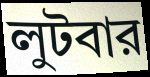
লুটবার